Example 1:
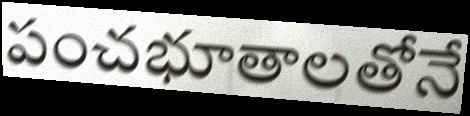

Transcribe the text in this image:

పంచభూతాలతోనే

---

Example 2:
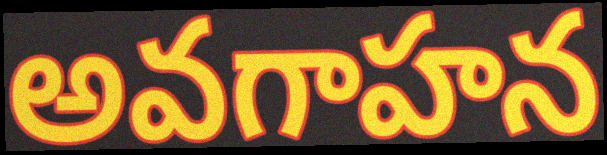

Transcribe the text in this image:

అవగాహన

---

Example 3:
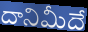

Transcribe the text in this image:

దానిమీదే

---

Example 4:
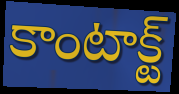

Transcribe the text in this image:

కాంటాక్ట్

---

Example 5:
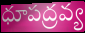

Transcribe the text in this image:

ధూపద్రవ్య